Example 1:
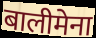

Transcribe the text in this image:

बालीमेना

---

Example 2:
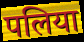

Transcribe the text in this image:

पलिया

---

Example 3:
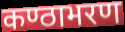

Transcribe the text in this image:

कण्ठाभरण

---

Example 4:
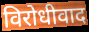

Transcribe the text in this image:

विरोधीवाद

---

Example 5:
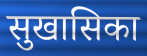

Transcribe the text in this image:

सुखासिका